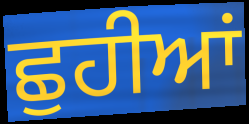
ਛੁਹੀਆਂ